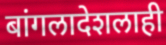
बांगलादेशलाही